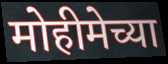
मोहीमेच्या